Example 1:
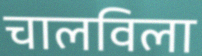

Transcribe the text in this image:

चालविला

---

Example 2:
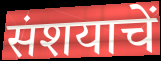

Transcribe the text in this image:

संशयाचें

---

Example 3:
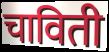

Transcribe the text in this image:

चाविती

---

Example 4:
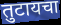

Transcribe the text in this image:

तुटायचा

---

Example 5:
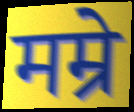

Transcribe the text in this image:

मम्रे